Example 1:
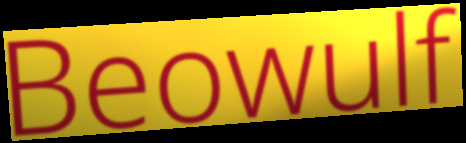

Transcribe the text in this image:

Beowulf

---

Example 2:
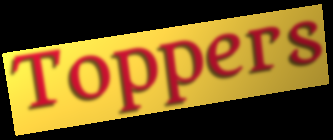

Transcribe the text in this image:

Toppers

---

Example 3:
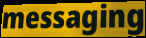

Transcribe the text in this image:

messaging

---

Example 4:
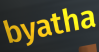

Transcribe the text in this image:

byatha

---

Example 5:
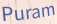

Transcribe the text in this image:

Puram